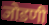
जोडणी